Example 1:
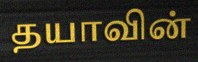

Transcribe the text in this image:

தயாவின்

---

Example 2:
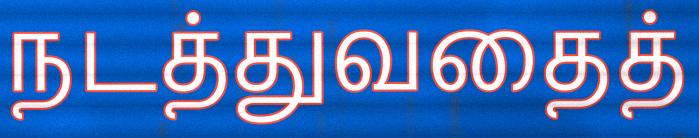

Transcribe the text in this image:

நடத்துவதைத்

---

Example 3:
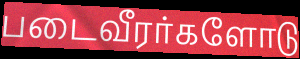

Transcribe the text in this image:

படைவீரர்களோடு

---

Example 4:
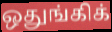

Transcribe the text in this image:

ஒதுங்கிக்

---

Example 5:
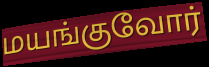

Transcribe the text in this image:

மயங்குவோர்